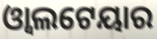
ଓ୍ୱାଲଟେୟାର